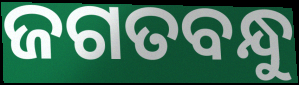
ଜଗତବନ୍ଧୁ